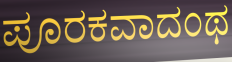
ಪೂರಕವಾದಂಥ